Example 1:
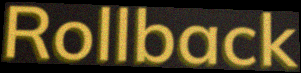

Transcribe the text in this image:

Rollback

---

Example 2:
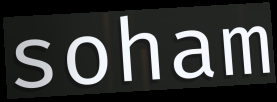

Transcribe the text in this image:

soham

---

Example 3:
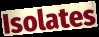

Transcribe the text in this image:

Isolates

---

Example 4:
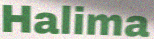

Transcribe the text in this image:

Halima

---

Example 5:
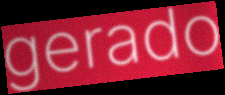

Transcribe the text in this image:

gerado